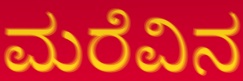
ಮರೆವಿನ